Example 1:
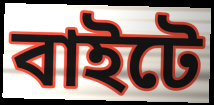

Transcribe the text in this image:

বাইটে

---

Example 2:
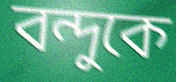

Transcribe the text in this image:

বন্দুকে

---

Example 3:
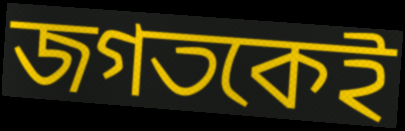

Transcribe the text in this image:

জগতকেই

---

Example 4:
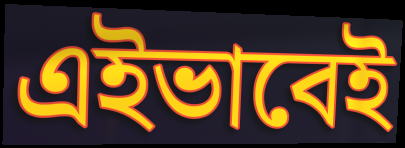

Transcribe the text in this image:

এইভাবেই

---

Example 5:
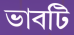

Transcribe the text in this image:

ভাবটি